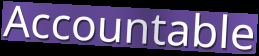
Accountable